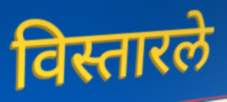
विस्तारले